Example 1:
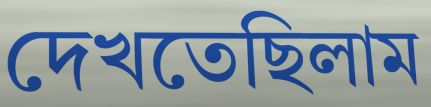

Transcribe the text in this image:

দেখতেছিলাম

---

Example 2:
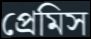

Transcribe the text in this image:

প্রেমিস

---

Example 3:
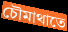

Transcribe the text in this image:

চৌমাথাতে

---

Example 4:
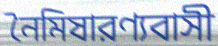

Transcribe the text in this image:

নৈমিষারণ্যবাসী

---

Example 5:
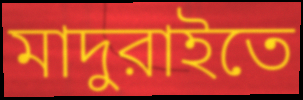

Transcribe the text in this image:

মাদুরাইতে